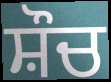
ਸ਼ੌਚ